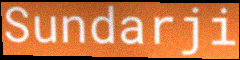
Sundarji